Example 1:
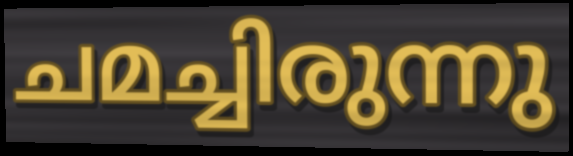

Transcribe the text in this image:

ചമച്ചിരുന്നു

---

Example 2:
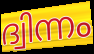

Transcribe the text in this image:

ദ്വിന്നം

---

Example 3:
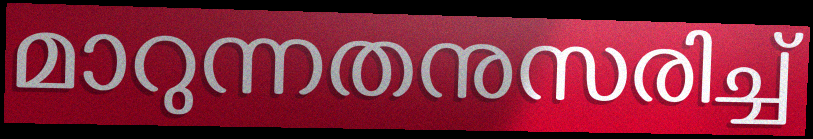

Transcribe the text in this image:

മാറുന്നതനുസരിച്ച്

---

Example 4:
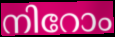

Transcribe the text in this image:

നിറോം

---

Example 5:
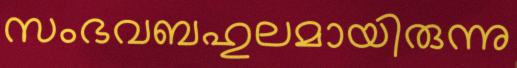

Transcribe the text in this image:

സംഭവബഹുലമായിരുന്നു